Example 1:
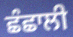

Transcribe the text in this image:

ਛੰਛਾਲੀ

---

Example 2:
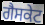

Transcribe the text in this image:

ਗੈਸਕੇਟ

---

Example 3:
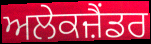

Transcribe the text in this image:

ਅਲੇਕਜ਼ੈਂਡਰ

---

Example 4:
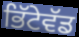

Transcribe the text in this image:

ਭਿੱਟੇਵੱਡ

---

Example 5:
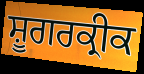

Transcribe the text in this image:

ਸ਼ੂਗਰਕ੍ਰੀਕ